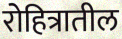
रोहित्रातील